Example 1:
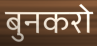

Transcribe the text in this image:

बुनकरो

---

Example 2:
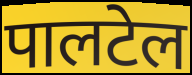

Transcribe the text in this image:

पालटेल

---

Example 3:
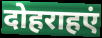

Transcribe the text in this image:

दोहराहएं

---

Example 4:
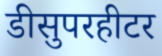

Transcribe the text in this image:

डीसुपरहीटर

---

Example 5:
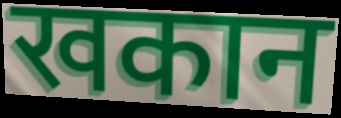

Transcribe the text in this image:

खकान